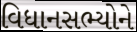
વિધાનસભ્યોને